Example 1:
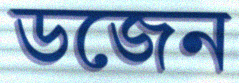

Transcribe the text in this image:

ডজেন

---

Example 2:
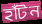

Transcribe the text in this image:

হাঁটন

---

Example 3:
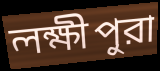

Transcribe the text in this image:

লক্ষীপুরা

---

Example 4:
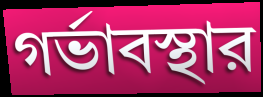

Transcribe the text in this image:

গর্ভাবস্থার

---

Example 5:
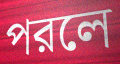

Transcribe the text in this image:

পরলে